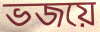
ভজয়ে